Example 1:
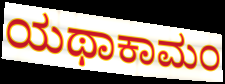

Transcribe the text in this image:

ಯಥಾಕಾಮಂ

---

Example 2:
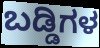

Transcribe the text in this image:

ಬಡ್ಡಿಗಳ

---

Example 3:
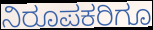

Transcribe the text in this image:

ನಿರೂಪಕರಿಗೂ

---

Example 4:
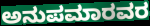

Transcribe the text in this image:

ಅನುಪಮಾರವರ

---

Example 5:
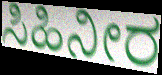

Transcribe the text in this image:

ಸಿಹಿನೀರ